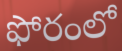
ఫోరంలో